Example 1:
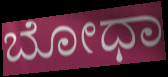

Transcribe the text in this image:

ಬೋಧಾ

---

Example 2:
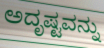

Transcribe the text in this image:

ಅದೃಷ್ಟವನ್ನು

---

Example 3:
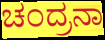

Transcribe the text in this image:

ಚಂದ್ರನಾ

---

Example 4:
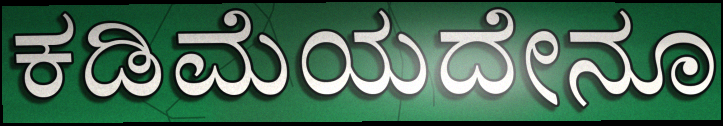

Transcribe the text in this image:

ಕಡಿಮೆಯದೇನೂ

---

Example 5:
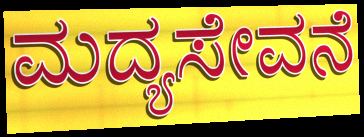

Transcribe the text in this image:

ಮದ್ಯಸೇವನೆ